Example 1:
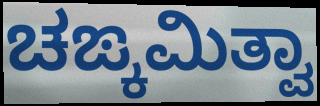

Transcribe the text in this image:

ಚಙ್ಕಮಿತ್ವಾ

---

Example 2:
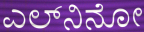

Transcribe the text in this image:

ಎಲ್‍ನಿನೋ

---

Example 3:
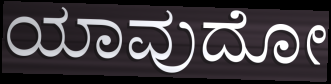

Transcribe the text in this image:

ಯಾವುದೋ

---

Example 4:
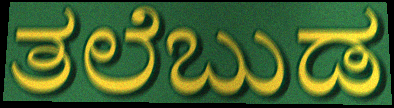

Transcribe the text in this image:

ತಲೆಬುಡ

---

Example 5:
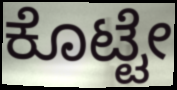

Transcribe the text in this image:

ಕೊಟ್ಟೇ